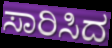
ಸಾರಿಸಿದ